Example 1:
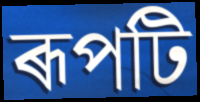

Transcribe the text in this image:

ৰূপটি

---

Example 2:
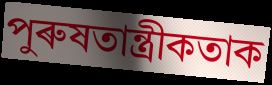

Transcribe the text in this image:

পুৰুষতান্ত্ৰীকতাক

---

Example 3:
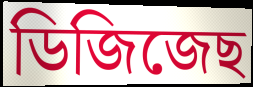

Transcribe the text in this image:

ডিজিজেছ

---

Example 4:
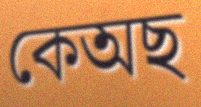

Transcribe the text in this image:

কেঅছ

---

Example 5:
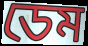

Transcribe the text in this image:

ডেম